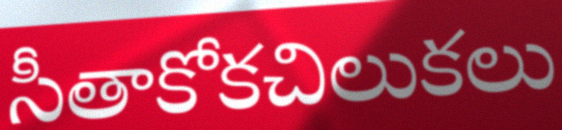
సీతాకోకచిలుకలు